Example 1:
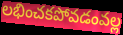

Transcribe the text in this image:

లభించకపోవడంవల్ల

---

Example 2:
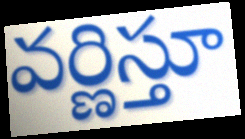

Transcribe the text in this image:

వర్ణిస్తూ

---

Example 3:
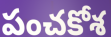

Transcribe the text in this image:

పంచకోశ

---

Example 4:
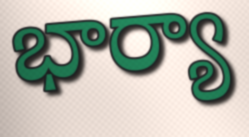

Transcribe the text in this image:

భార్యా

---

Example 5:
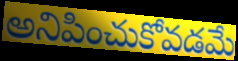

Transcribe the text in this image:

అనిపించుకోవడమే